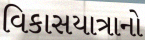
વિકાસયાત્રાનો